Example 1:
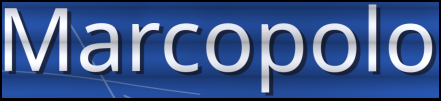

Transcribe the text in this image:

Marcopolo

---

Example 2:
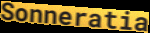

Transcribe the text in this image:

Sonneratia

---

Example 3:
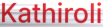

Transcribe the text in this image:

Kathiroli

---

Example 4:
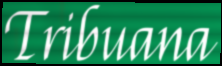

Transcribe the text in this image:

Tribuana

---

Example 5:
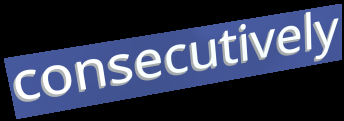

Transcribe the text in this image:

consecutively